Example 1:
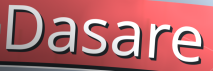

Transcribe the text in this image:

Dasare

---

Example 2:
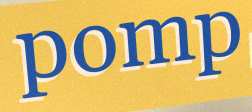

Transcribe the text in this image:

pomp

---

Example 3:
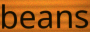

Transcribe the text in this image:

beans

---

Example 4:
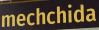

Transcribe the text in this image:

mechchida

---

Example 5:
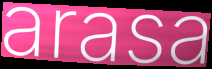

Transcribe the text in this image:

arasa